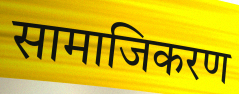
सामाजिकरण